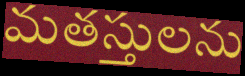
మతస్తులను